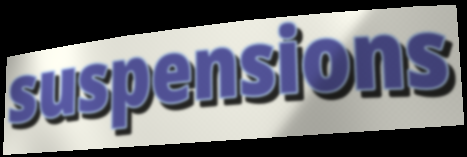
suspensions